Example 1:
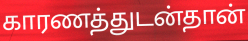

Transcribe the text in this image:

காரணத்துடன்தான்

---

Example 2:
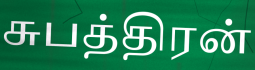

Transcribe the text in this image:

சுபத்திரன்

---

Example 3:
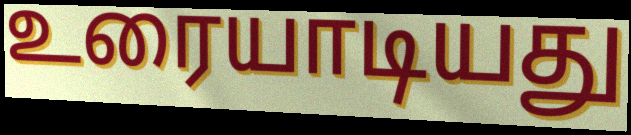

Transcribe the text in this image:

உரையாடியது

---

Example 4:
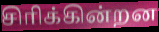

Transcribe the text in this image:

சிரிக்கின்றன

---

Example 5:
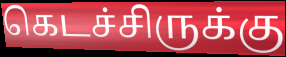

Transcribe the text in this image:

கெடச்சிருக்கு